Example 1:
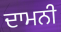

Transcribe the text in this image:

ਦਾਮਨੀ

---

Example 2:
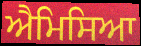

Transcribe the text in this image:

ਐਮਿਸਿਆ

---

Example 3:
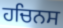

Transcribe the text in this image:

ਹਚਿਨਸ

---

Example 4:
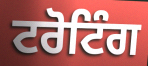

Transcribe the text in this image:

ਟਰੋਟਿੰਗ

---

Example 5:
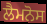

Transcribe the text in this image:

ਲੈਮਨੋਸ